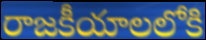
రాజకీయాలలోకి